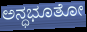
ಅನ್ಧಭೂತೋ